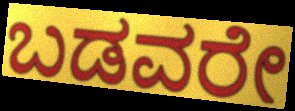
ಬಡವರೇ